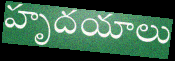
హృదయాలు